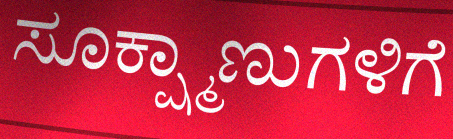
ಸೂಕ್ಷ್ಮಾಣುಗಳಿಗೆ